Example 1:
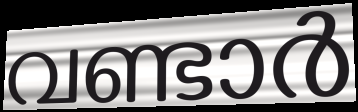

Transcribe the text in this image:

വണ്ടാർ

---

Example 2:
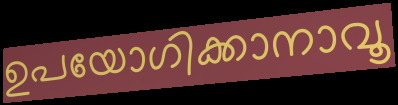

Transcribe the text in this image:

ഉപയോഗിക്കാനാവൂ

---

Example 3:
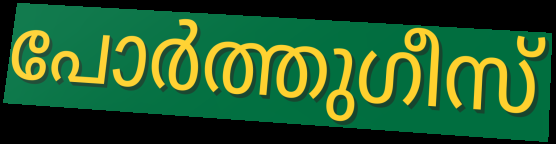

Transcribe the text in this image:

പോർത്തുഗീസ്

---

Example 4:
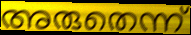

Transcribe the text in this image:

അരുതെന്ന്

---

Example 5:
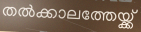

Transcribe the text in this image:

തൽക്കാലത്തേയ്ക്ക്